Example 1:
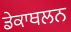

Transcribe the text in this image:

ਡੇਕਾਥਲਨ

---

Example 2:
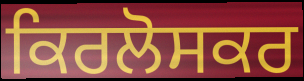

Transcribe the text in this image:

ਕਿਰਲੋਸਕਰ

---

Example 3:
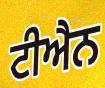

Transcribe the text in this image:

ਟੀਐਨ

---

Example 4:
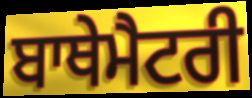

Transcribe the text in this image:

ਬਾਥੇਮੈਟਰੀ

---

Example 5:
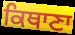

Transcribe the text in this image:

ਕਿਥਾਣਾ